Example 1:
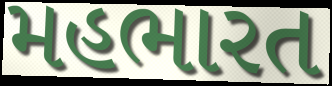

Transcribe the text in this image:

મહભારત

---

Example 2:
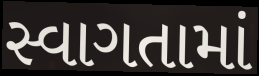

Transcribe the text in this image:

સ્વાગતામાં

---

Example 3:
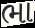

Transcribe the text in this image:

ભા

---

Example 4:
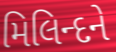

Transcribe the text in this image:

મિલિન્દને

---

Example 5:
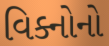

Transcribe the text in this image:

વિક્નોનો